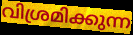
വിശ്രമിക്കുന്ന